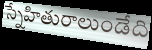
స్నేహితురాలుండేది